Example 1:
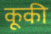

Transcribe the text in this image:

कूकी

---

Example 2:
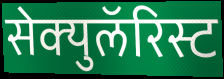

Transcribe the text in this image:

सेक्युलॅरिस्ट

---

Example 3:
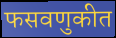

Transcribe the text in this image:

फसवणुकीत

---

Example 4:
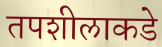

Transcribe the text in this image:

तपशीलाकडे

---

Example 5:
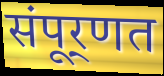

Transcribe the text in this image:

संपूर्णत